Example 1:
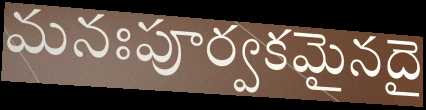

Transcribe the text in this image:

మనఃపూర్వకమైనదై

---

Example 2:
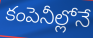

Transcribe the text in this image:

కంపెనీల్లోనే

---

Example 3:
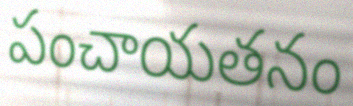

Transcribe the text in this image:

పంచాయతనం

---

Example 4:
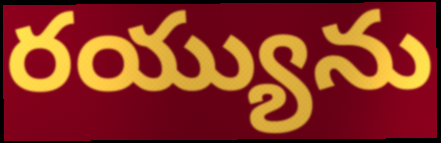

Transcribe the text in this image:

రయ్యును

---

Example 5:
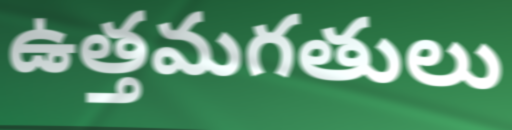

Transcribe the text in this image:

ఉత్తమగతులు